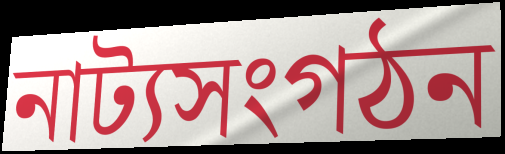
নাট্যসংগঠন